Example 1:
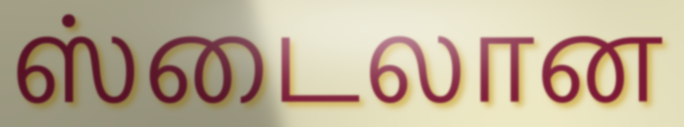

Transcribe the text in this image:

ஸ்டைலான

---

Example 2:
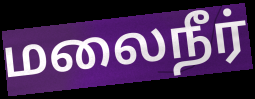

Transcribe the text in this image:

மலைநீர்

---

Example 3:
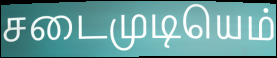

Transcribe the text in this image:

சடைமுடியெம்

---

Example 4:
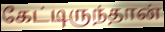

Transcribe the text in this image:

கேட்டிருந்தான்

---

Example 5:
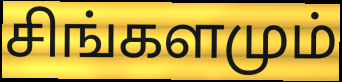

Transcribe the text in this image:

சிங்களமும்